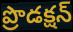
ప్రొడక్షన్